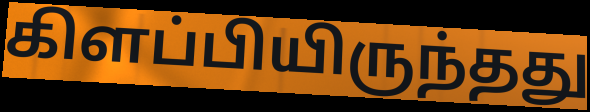
கிளப்பியிருந்தது